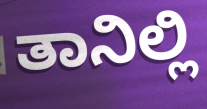
ತಾನಿಲ್ಲಿ